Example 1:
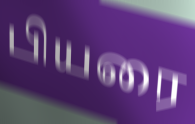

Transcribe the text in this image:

பியரை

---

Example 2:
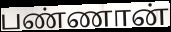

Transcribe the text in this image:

பண்ணான்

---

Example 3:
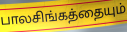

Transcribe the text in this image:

பாலசிங்கத்தையும்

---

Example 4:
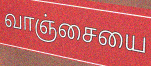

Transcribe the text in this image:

வாஞ்சையை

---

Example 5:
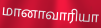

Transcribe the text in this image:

மானாவாரியா